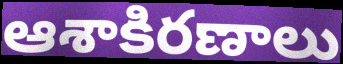
ఆశాకిరణాలు